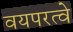
वयपरत्वे